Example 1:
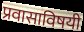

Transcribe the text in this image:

प्रवासाविषयी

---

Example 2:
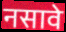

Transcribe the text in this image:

नसावे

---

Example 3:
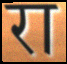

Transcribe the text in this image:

रा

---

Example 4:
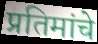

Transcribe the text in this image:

प्रतिमांचे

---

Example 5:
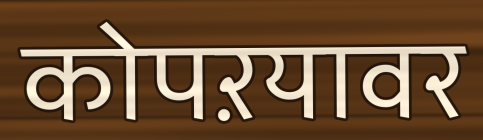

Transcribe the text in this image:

कोपऱयावर